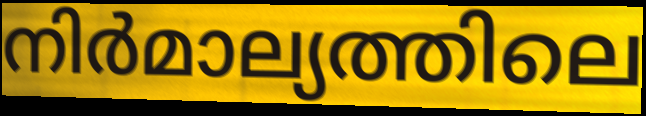
നിർമാല്യത്തിലെ